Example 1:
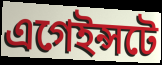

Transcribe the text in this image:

এগেইন্সটে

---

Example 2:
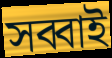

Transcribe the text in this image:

সব্বাই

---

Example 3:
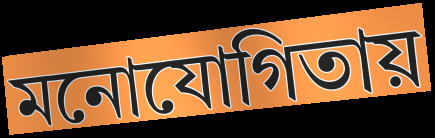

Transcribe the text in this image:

মনোযোগিতায়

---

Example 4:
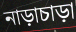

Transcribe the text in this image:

নাড়াচাড়া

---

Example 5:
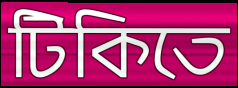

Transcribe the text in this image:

টিকিতে